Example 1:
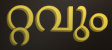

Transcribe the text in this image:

റ്റവും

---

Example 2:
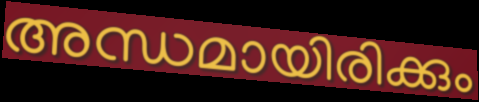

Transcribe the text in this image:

അന്ധമായിരിക്കും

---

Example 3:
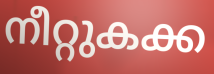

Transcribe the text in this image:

നീറ്റുകക്ക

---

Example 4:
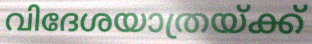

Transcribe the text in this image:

വിദേശയാത്രയ്ക്ക്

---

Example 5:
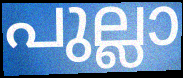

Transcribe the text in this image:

പുല്ലാ